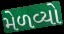
મેળવ્યો